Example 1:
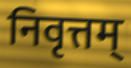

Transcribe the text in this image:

निवृत्तम्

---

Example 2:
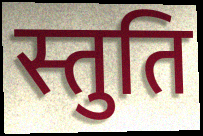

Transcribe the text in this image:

स्तुति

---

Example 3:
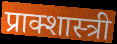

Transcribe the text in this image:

प्राक्शास्त्री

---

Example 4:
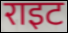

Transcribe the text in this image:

राइट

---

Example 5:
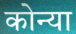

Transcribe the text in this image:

कोन्या